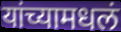
यांच्यामधलं